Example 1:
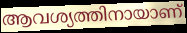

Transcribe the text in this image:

ആവശ്യത്തിനായാണ്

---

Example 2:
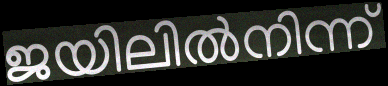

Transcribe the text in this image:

ജയിലിൽനിന്ന്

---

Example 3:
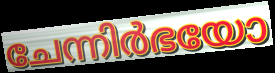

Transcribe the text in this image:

ചേന്നിർഭയോ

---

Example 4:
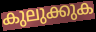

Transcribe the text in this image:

കുലുക്കുക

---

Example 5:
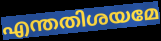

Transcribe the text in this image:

എന്തതിശയമേ